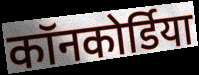
कॉनकोर्डिया